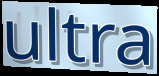
ultra